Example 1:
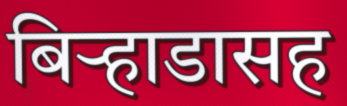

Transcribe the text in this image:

बिऱ्हाडासह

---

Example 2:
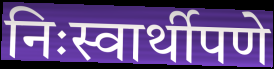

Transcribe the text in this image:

निःस्वार्थीपणे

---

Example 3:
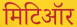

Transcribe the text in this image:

मिटिऑर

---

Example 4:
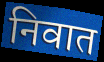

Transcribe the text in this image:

निवात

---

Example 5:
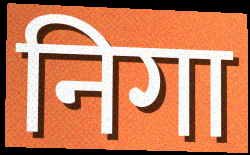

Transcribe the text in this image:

निगा